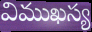
విముఖస్య